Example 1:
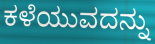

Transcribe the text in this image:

ಕಳೆಯುವದನ್ನು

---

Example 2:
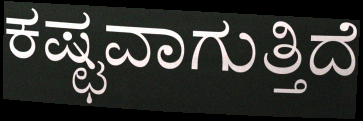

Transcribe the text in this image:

ಕಷ್ಟವಾಗುತ್ತಿದೆ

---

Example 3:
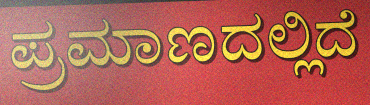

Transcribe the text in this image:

ಪ್ರಮಾಣದಲ್ಲಿದೆ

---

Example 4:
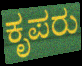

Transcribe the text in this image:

ಕೃಪರು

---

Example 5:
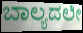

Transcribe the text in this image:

ಬಾಲ್ಯದಲೇ